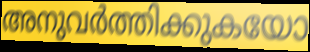
അനുവർത്തിക്കുകയോ